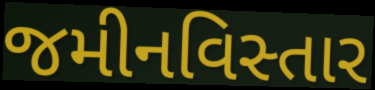
જમીનવિસ્તાર